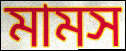
মামস